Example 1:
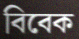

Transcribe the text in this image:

বিবেক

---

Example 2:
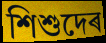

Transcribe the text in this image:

শিশুদেৰ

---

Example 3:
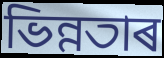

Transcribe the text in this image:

ভিন্নতাৰ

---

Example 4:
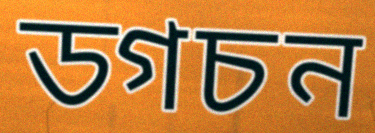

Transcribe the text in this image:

ডগচন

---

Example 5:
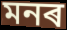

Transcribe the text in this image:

মনৰ